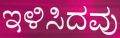
ಇಳಿಸಿದವು